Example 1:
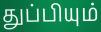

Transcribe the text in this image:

துப்பியும்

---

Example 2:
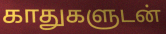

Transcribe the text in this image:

காதுகளுடன்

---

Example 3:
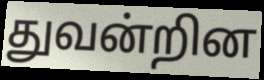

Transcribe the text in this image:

துவன்றின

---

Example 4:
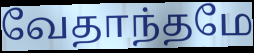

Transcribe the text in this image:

வேதாந்தமே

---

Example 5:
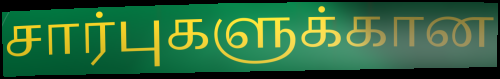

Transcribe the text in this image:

சார்புகளுக்கான